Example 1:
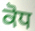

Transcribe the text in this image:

ਕੋਧ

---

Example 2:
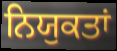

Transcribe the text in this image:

ਨਿਯੁਕਤਾਂ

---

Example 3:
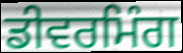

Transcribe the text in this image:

ਡੀਵਰਮਿੰਗ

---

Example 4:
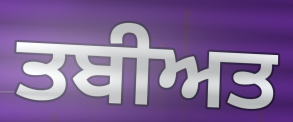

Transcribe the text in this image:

ਤਬੀਅਤ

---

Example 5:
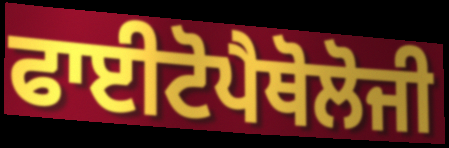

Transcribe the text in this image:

ਫਾਈਟੋਪੈਥੋਲੋਜੀ